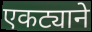
एकट्याने